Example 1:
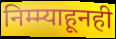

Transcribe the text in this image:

निम्म्याहूनही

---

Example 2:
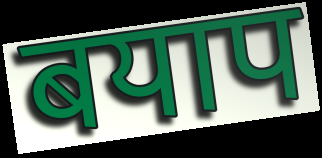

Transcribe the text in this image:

बयाप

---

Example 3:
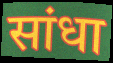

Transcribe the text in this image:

सांधा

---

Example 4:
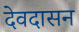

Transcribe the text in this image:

देवदासन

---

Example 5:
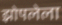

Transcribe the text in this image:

झोपलेला